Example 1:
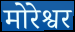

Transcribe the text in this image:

मोरेश्वर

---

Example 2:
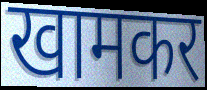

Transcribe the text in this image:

खामकर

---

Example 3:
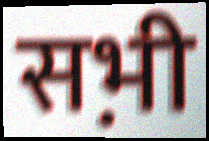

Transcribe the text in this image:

सभ़ी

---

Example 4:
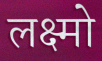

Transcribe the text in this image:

लक्ष्मो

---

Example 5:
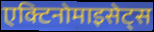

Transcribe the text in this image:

एक्टिनोमाइसेट्स